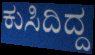
ಕುಸಿದಿದ್ದ